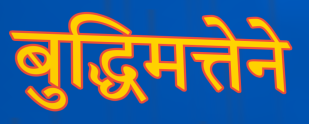
बुद्धिमत्तेने